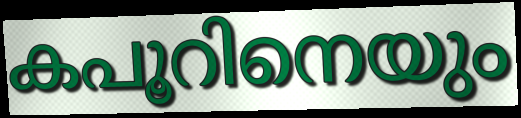
കപൂറിനെയും